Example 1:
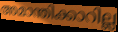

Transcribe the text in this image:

അമാന്തിക്കാറില്ല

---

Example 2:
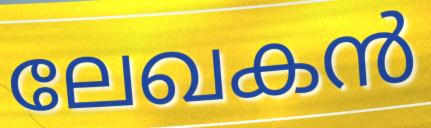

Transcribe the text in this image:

ലേഖകൻ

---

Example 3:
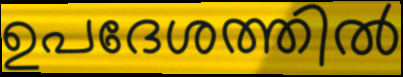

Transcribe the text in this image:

ഉപദേശത്തിൽ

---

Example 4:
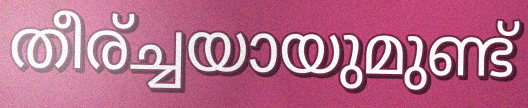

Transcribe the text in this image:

തീര്ച്ചയായുമുണ്ട്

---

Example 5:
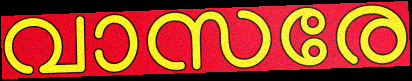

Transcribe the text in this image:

വാസരേ